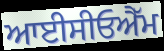
ਆਈਸੀਓਐੱਮ